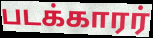
படக்காரர்